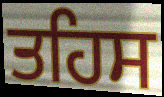
ਤਹਿਸ